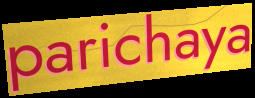
parichaya